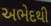
અભેદથી